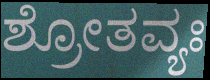
ಶ್ರೋತವ್ಯಃ